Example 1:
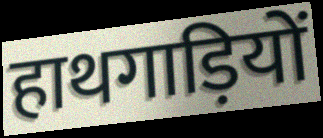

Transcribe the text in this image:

हाथगाड़ियों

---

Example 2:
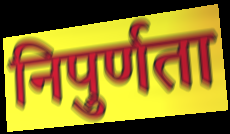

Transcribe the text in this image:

निपुर्णता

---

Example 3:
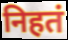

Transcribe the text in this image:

निहतं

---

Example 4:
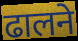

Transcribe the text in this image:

ढालने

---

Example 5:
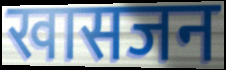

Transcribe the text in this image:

खासजन